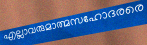
എല്ലാവരുമാത്മസഹോദരരെ